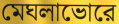
মেঘলাভোরে